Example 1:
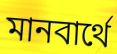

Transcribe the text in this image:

মানবার্থে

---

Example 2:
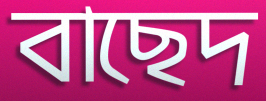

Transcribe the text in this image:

বাছেদ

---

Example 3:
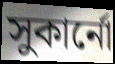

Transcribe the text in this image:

সুকার্নো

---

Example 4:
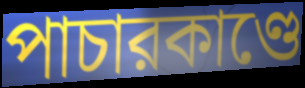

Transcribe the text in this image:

পাচারকাণ্ডে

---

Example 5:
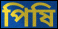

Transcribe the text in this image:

পিষি